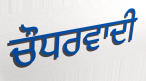
ਚੌਧਰਵਾਦੀ